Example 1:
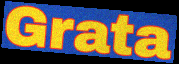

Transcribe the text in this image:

Grata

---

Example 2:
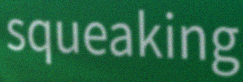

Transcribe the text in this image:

squeaking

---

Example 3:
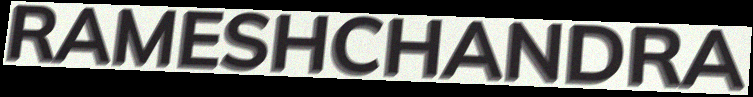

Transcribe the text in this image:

RAMESHCHANDRA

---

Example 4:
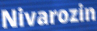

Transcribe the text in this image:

Nivarozin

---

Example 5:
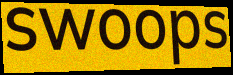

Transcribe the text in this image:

swoops